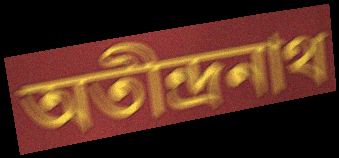
অতীন্দ্রনাথ